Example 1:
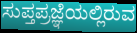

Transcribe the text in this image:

ಸುಪ್ತಪ್ರಜ್ಞೆಯಲ್ಲಿರುವ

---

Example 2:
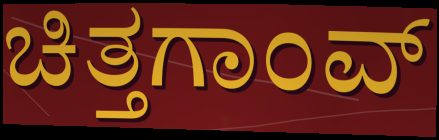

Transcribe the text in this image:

ಚಿತ್ತಗಾಂವ್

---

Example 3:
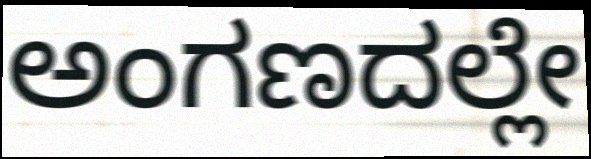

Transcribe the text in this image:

ಅಂಗಣದಲ್ಲೇ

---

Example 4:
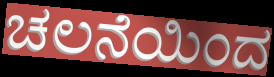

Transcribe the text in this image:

ಚಲನೆಯಿಂದ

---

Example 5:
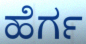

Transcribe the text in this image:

ಹೆರ್ಗ